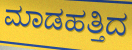
ಮಾಡಹತ್ತಿದ